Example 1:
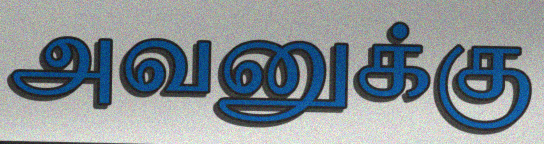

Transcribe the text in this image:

அவனுக்கு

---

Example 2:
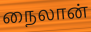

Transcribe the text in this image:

நைலான்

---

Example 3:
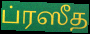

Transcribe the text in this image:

ப்ரஸீத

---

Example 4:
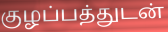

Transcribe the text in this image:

குழப்பத்துடன்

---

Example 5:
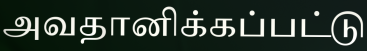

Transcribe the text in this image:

அவதானிக்கப்பட்டு